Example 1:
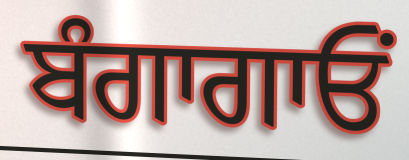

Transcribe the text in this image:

ਬੰਗਾਗਾਓਂ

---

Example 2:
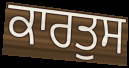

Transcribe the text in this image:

ਕਾਰਤੁਸ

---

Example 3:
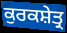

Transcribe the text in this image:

ਕੁਰਕਸ਼ੇਤ੍ਰ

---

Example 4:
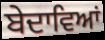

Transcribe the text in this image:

ਬੇਦਾਵਿਆਂ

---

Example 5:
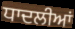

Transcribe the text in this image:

ਧਾਦਲੀਆਂ